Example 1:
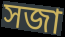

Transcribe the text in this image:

সজা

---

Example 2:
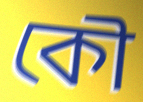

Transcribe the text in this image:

কৌ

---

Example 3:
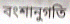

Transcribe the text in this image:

বংশানুগতি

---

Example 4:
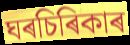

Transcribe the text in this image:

ঘৰচিৰিকাৰ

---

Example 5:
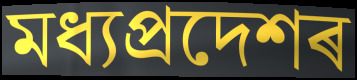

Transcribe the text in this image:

মধ্যপ্ৰদেশৰ